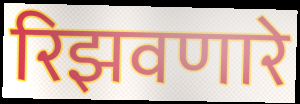
रिझवणारे